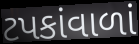
ટપકાંવાળાં